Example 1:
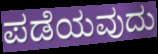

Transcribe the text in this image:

ಪಡೆಯವುದು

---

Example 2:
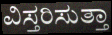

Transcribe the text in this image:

ವಿಸ್ತರಿಸುತ್ತಾ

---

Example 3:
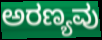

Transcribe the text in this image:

ಅರಣ್ಯವು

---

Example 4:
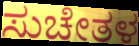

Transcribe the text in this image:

ಸುಚೇತಳ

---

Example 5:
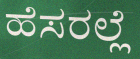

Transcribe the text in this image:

ಹೆಸರಲ್ಲೆ